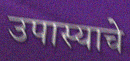
उपास्याचे